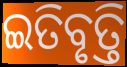
ଇତିବୃତ୍ତି